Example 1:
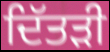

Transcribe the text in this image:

ਦਿੱਤੜੀ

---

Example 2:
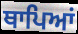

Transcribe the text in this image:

ਥਾਪਿਆਂ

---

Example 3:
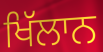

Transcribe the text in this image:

ਖਿੱਲਾਨ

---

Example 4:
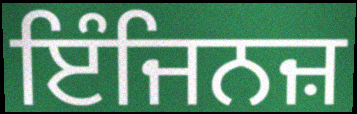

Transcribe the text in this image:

ਇੰਜਿਨਜ਼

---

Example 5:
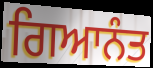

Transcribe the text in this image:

ਗਿਆਨੰਤ